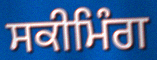
ਸਕੀਮਿੰਗ